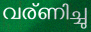
വര്ണിച്ചു